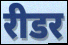
रीडर